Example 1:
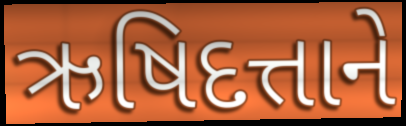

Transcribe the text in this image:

ઋષિદત્તાને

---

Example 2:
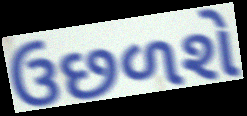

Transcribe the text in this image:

ઉછળશે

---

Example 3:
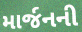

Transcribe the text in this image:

માર્જનની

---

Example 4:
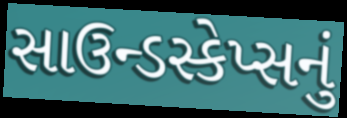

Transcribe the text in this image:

સાઉન્ડસ્કેપ્સનું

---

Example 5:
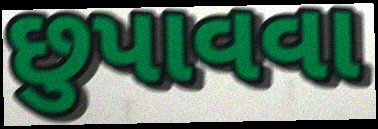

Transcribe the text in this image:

છુપાવવા